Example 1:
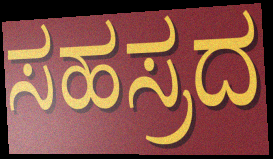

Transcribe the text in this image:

ಸಹಸ್ರದ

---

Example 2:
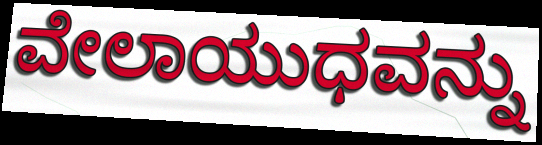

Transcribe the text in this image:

ವೇಲಾಯುಧವನ್ನು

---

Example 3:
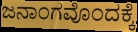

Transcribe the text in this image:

ಜನಾಂಗವೊಂದಕ್ಕೆ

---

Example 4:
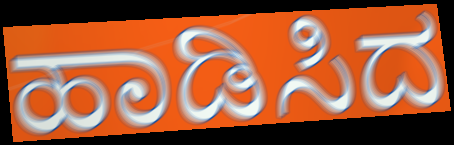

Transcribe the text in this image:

ಹಾಡಿಸಿದ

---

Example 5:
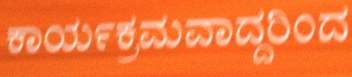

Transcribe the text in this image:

ಕಾರ್ಯಕ್ರಮವಾದ್ದರಿಂದ